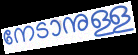
നേടാനുള്ള